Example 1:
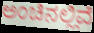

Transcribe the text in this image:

ಅಂಚಿನಲ್ಲಿವೆ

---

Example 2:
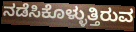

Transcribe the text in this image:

ನಡೆಸಿಕೊಳ್ಳುತ್ತಿರುವ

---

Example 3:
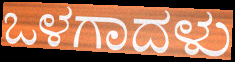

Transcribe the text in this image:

ಒಳಗಾದಳು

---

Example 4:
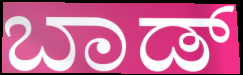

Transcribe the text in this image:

ಬಾಡ್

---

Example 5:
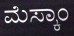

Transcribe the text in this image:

ಮೆಸ್ಕಾಂ